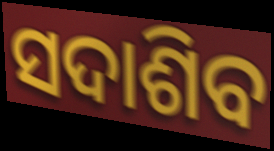
ସଦାଶିବ